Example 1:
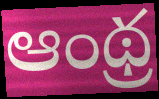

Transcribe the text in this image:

ఆంథ్ర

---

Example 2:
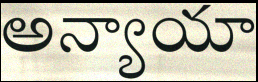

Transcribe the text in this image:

అన్యాయా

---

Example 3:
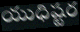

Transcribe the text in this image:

యుధిష్టర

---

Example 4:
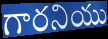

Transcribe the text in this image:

గారనియు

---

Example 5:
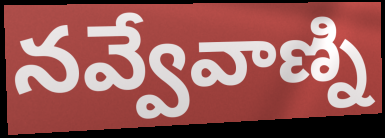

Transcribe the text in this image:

నవ్వేవాణ్ని